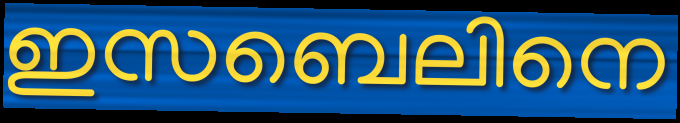
ഇസബെലിനെ